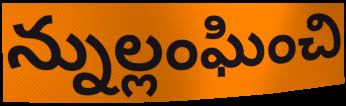
న్నుల్లంఘించి